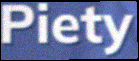
Piety